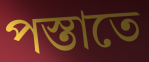
পস্তাতে